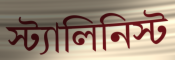
স্ট্যালিনিস্ট